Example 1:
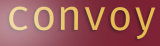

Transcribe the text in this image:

convoy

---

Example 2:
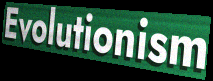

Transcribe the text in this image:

Evolutionism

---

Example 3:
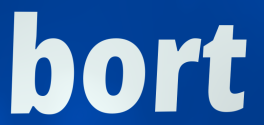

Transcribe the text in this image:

bort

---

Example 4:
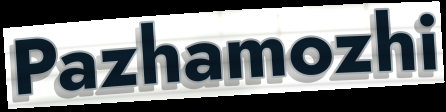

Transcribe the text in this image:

Pazhamozhi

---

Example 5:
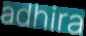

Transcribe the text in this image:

adhira